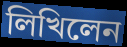
লিখিলেন